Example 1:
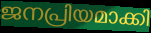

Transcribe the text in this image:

ജനപ്രിയമാക്കി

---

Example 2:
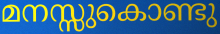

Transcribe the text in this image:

മനസ്സുകൊണ്ടു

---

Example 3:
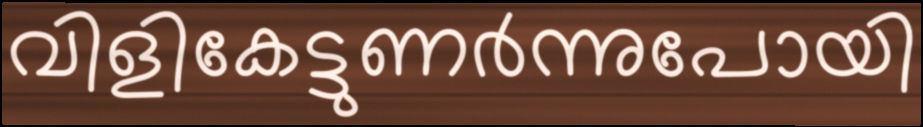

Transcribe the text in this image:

വിളികേട്ടുണർന്നുപോയി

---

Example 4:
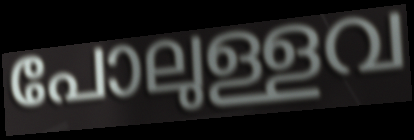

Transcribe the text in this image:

പോലുള്ളവ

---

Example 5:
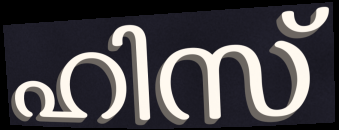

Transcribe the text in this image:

ഹിസ്